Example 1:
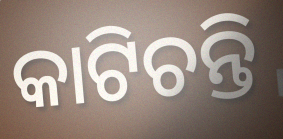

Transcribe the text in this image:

କାଟିଚନ୍ତି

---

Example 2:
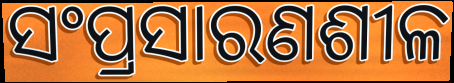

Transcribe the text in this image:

ସଂପ୍ରସାରଣଶୀଳ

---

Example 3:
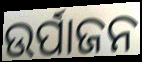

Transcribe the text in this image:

ଉର୍ପାଜନ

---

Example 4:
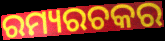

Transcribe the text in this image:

ରମ୍ୟରଚକର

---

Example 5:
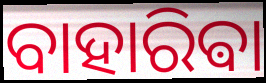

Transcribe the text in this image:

ବାହାରିଵା